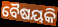
ବୈଷୟକି